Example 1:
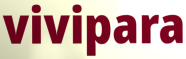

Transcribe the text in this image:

vivipara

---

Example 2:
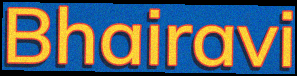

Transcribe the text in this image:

Bhairavi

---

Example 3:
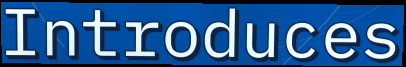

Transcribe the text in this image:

Introduces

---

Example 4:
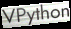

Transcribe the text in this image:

VPython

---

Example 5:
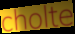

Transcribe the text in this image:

cholte